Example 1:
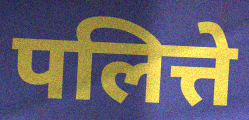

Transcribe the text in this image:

पलित्ते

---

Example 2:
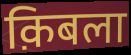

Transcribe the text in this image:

क़िबला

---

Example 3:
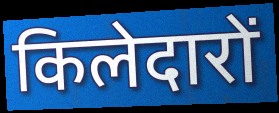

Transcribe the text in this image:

किलेदारों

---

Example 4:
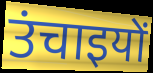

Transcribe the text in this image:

उंचाइयों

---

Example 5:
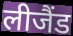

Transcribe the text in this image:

लीजैंड